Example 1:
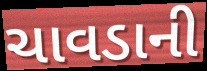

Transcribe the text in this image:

ચાવડાની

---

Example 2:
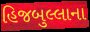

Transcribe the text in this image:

હિજબુલ્લાના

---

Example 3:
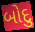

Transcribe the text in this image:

બોદુ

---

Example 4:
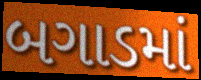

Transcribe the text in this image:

બગાડમાં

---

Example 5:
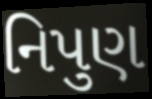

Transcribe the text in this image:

નિપુણ